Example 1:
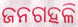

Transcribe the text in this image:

ଜନଗହଳି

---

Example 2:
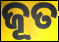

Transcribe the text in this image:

ଜୂତ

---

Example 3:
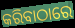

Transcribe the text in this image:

କରିବାଠାରେ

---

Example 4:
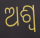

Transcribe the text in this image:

ଅଶ୍ବ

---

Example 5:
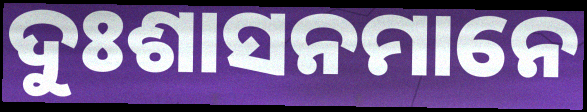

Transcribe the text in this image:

ଦୁଃଶାସନମାନେ